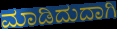
ಮಾಡಿದುದಾಗಿ